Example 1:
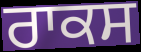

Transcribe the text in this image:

ਰਾਕਸ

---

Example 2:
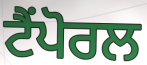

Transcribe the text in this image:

ਟੈਂਪੋਰਲ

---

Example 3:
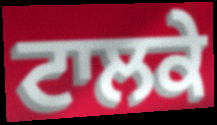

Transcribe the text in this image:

ਟਾਲਕੇ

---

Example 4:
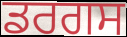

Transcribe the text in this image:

ਡਰਗਸ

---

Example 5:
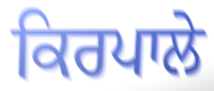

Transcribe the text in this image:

ਕਿਰਪਾਲੇ